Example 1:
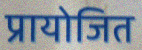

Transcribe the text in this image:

प्रायोजित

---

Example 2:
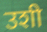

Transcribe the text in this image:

उशी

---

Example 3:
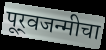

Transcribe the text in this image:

पूर्वजन्मीचा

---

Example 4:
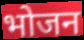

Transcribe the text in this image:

भोजन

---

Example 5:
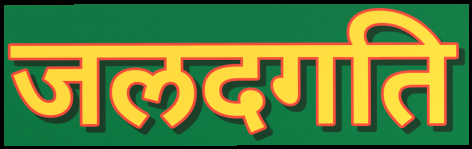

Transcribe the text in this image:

जलदगति